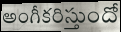
అంగీకరిస్తుందో